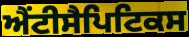
ਐਂਟੀਸੈਪਿਟਿਕਸ